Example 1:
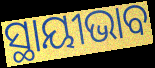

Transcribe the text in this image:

ସ୍ଥାୟୀଭାବ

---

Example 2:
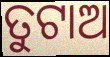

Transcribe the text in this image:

ତୁଟାଅ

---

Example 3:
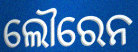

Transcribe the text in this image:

ଲୌରେନ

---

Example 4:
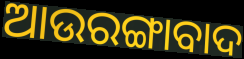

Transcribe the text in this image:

ଆଉରଙ୍ଗାବାଦ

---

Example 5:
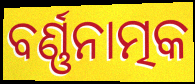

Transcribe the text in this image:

ବର୍ଣ୍ଣନାତ୍ମକ